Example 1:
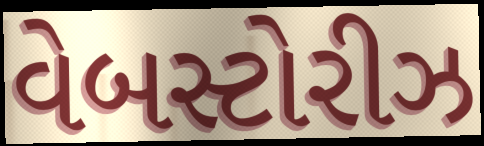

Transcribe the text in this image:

વેબસ્ટોરીઝ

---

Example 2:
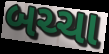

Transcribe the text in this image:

બચ્ચા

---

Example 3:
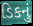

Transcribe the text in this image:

ડિકનું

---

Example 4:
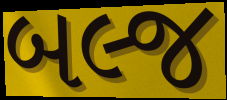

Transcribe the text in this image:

બલ્જ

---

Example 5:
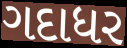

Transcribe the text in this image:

ગદાધર